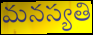
మనస్యతి